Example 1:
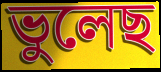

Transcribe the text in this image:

ভুলেছ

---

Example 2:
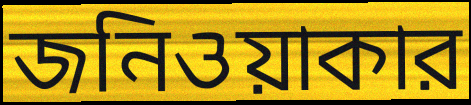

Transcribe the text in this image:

জনিওয়াকার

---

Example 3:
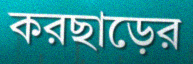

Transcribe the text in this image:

করছাড়ের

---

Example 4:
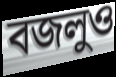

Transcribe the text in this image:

বজলুও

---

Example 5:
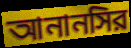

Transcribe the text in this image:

আনানসির